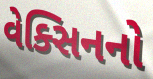
વેક્સિનનો